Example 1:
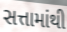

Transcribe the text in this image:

સત્તામાંથી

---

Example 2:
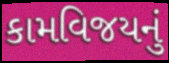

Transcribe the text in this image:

કામવિજયનું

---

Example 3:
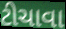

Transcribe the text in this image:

ટીચાવા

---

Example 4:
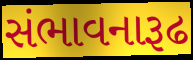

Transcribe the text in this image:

સંભાવનારૂઢ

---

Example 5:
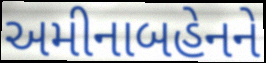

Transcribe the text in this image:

અમીનાબહેનને